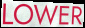
LOWER